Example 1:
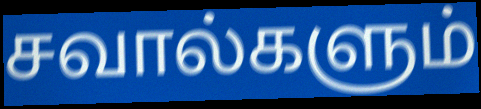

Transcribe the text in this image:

சவால்களும்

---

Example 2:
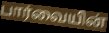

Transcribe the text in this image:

பார்வையின்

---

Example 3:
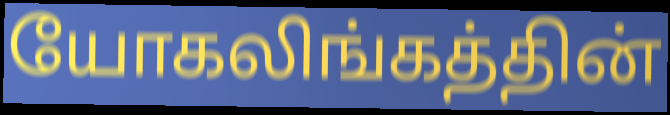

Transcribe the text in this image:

யோகலிங்கத்தின்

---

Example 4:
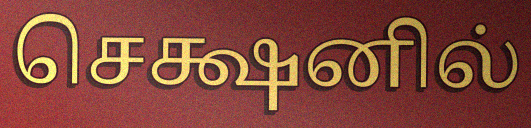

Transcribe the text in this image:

செக்ஷனில்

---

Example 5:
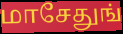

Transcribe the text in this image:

மாசேதுங்